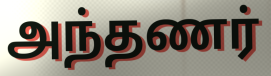
அந்தணர்